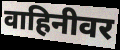
वाहिनीवर